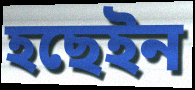
হছেইন